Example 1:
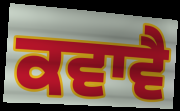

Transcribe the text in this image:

ਕਵਾਵੈ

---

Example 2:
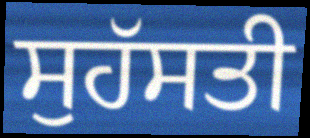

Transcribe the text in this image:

ਸੁਹੱਸਤੀ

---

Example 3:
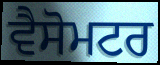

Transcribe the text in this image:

ਵੈਸੋਮਟਰ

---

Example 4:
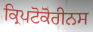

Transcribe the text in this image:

ਕ੍ਰਿਪਟੋਕੋਰੀਨਸ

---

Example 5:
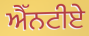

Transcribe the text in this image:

ਐੱਨਟੀਏ